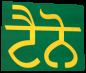
ਟੈਨੋ